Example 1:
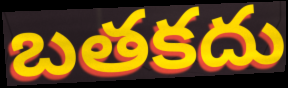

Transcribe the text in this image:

బతకదు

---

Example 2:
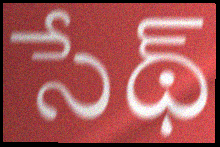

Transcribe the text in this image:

సేథ్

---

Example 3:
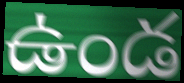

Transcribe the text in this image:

ఉండ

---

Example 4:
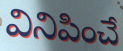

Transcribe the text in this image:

వినిపించే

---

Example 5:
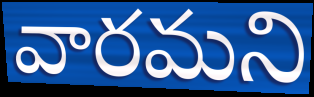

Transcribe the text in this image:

వారమని